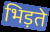
भिड़ते